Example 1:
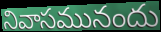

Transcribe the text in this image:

నివాసమునందు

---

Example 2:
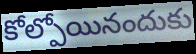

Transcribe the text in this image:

కోల్పోయినందుకు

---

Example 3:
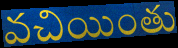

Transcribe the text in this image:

వచియింతు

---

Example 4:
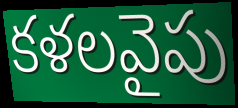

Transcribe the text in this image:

కళలవైపు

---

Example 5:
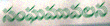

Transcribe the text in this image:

సంఘమువలన